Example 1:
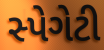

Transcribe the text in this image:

સ્પેગેટી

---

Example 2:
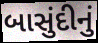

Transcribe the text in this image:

બાસુંદીનું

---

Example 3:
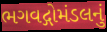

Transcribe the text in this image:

ભગવદ્ગોમંડલનું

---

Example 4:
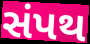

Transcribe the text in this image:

સંપથ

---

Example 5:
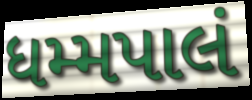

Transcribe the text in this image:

ધમ્મપાલં